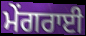
ਮੇਂਗਰਾਈ